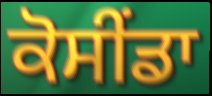
ਕੋਸੀਂਡਾ